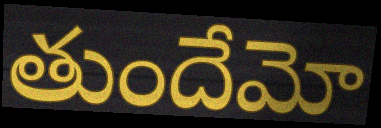
తుందేమో